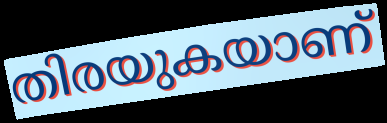
തിരയുകയാണ്